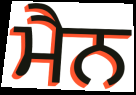
ਮੈਨ